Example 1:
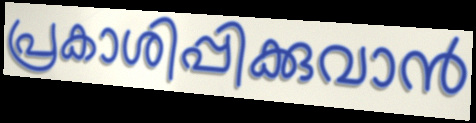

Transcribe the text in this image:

പ്രകാശിപ്പിക്കുവാൻ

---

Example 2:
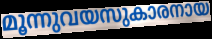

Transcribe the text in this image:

മൂന്നുവയസുകാരനായ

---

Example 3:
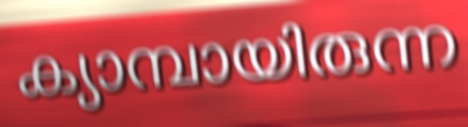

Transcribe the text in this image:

ക്യാമ്പായിരുന്ന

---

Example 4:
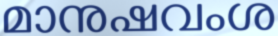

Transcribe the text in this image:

മാനുഷവംശ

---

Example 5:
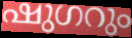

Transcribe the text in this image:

ഷുഗറും